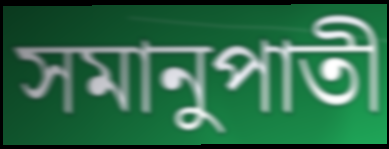
সমানুপাতী